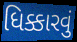
ધિક્કારવું